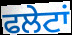
ਫਲੇਟਾਂ